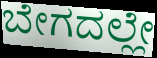
ಬೇಗದಲ್ಲೇ